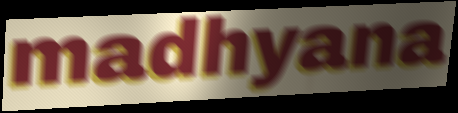
madhyana